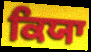
ਕਿਯਾ